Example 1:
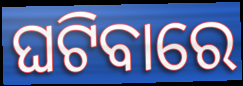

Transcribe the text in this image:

ଘଟିବାରେ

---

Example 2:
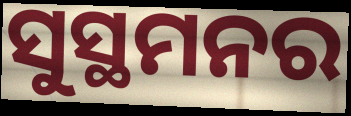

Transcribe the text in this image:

ସୁସ୍ଥମନର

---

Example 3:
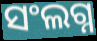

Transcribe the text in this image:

ସଂଲଗ୍ନ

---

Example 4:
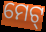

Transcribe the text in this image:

ମେଟ୍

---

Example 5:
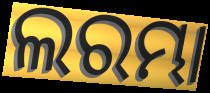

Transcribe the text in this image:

ଲରମ୍ଭା